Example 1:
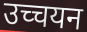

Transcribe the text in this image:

उच्चयन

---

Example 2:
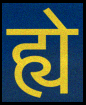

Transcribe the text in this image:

ह्ये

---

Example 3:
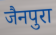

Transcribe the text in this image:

जैनपुरा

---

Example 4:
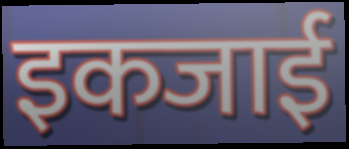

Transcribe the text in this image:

इकजाई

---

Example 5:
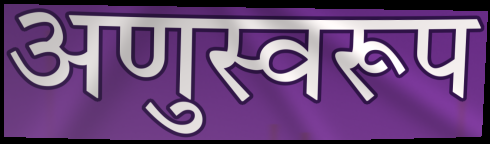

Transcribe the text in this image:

अणुस्वरूप